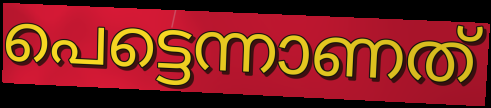
പെട്ടെന്നാണത്